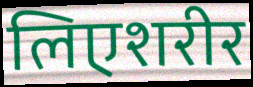
लिएशरीर